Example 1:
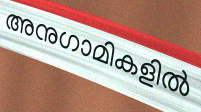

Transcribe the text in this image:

അനുഗാമികളിൽ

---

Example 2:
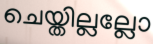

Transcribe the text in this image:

ചെയ്തില്ലല്ലോ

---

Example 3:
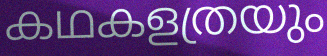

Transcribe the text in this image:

കഥകളത്രയും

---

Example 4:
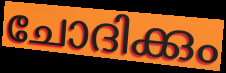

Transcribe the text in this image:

ചോദിക്കും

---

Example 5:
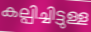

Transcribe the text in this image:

കല്പിച്ചിട്ടുള്ള